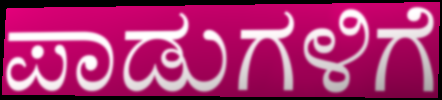
ಪಾಡುಗಳಿಗೆ